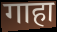
गाहा